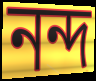
নন্দ